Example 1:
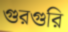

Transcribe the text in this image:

গুরগুরি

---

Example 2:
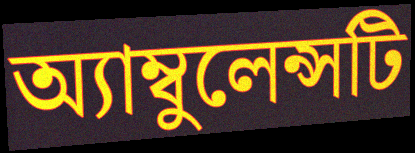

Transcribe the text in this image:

অ্যাম্বুলেন্সটি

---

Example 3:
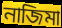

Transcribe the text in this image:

নাজিমা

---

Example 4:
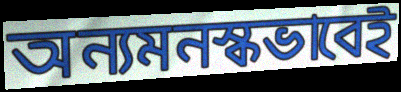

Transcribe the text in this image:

অন্যমনস্কভাবেই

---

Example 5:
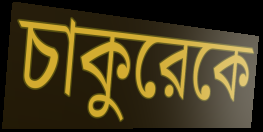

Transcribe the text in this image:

চাকুরেকে